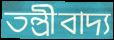
তন্ত্ৰীবাদ্য